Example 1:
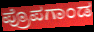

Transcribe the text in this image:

ಪ್ರೊಪಗಾಂಡ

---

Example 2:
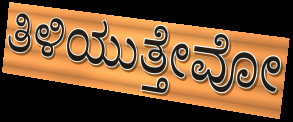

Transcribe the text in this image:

ತಿಳಿಯುತ್ತೇವೋ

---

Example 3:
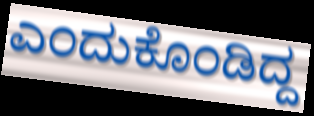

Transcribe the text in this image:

ಎಂದುಕೊಂಡಿದ್ದ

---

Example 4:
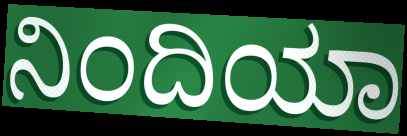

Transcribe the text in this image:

ನಿಂದಿಯಾ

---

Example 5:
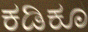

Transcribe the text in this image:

ಕಡಿಕೂ